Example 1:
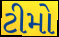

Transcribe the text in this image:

ટીમો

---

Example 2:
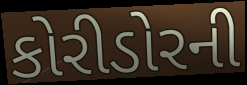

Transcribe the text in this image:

કોરીડોરની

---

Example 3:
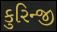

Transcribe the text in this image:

કુરિન્જી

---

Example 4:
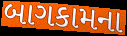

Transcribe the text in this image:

બાગકામના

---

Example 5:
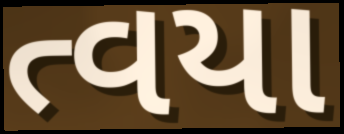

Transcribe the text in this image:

ત્વયા